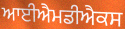
ਆਈਐਮਡੀਐਕਸ